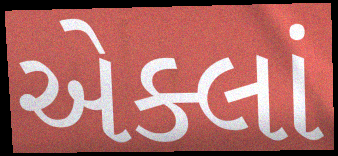
એક્લાં